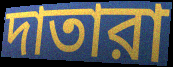
দাতারা